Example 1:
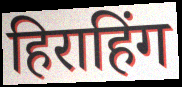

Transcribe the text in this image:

हिराहिंग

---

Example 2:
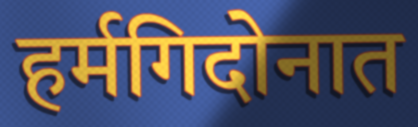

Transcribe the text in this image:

हर्मगिदोनात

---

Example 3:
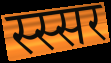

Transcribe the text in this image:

स्स्सर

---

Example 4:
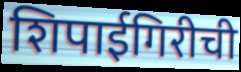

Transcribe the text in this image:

शिपाईगिरीची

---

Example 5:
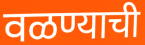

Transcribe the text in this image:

वळण्याची